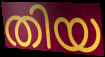
തിയ